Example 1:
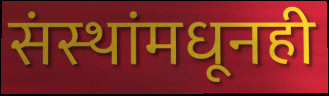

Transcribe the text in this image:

संस्थांमधूनही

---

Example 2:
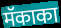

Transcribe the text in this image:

मॅकाका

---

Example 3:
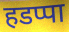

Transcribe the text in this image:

हडप्पा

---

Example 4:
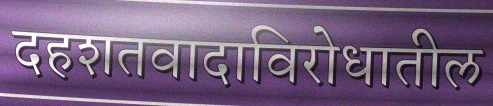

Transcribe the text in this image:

दहशतवादाविरोधातील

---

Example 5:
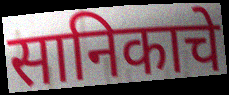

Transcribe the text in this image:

सानिकाचे